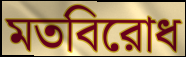
মতবিরোধ